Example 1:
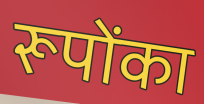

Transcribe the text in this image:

रूपोंका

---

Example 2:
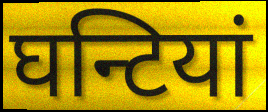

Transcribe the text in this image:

घन्टियां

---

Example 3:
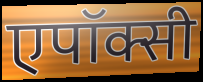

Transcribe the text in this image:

एपॉक्सी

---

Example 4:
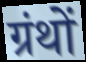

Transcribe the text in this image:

ग्रंथों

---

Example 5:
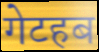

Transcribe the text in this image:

गेटहब